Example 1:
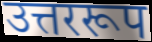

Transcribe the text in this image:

उत्तररूप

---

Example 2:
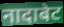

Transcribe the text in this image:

नादाबेट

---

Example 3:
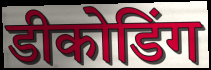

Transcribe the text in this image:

डीकोडिंग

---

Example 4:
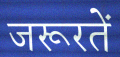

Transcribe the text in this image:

जरूरतें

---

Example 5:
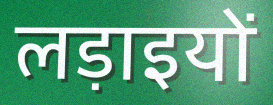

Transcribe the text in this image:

लड़ाइयों